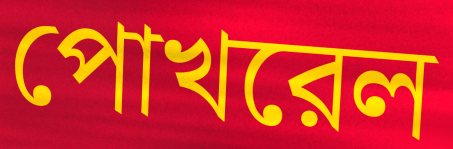
পোখরেল